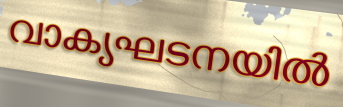
വാക്യഘടനയിൽ